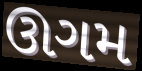
ઊગમ